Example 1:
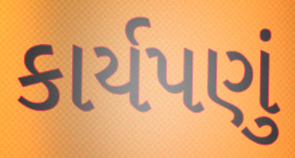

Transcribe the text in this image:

કાર્યપણું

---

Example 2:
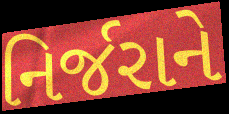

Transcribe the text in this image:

નિર્જરાને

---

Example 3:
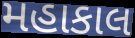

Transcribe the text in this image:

મહાકાલ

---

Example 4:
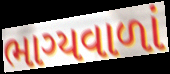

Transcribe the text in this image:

ભાગ્યવાળાં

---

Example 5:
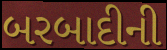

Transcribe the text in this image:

બરબાદીની